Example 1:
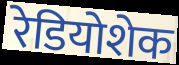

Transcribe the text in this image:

रेडियोशेक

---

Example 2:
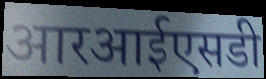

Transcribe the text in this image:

आरआईएसडी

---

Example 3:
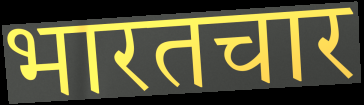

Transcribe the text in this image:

भारतचार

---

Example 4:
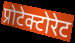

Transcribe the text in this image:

प्रोटेक्टोरेट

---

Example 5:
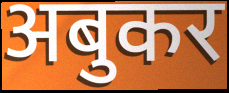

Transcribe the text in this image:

अबुकर